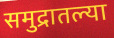
समुद्रातल्या